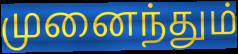
முனைந்தும்